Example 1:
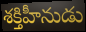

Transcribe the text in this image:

శక్తిహీనుడు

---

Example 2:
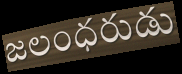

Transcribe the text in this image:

జలంధరుడు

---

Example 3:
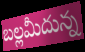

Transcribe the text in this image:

బల్లమీదున్న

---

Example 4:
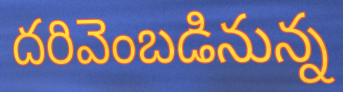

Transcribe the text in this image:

దరివెంబడినున్న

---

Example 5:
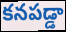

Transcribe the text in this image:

కనపడ్డా